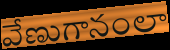
వేణుగానంలా